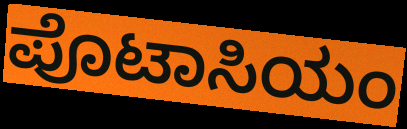
ಪೊಟಾಸಿಯಂ